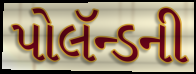
પોલૅન્ડની